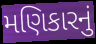
મણિકારનું